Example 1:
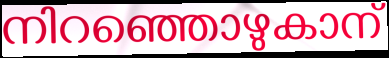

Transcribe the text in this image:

നിറഞ്ഞൊഴുകാന്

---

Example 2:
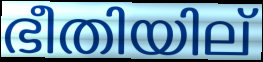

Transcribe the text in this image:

ഭീതിയില്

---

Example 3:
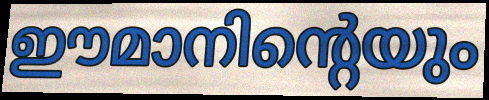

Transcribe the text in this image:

ഈമാനിന്റെയും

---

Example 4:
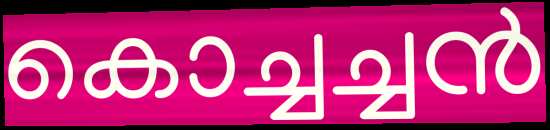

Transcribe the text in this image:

കൊച്ചച്ചൻ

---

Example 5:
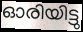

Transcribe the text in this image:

ഓരിയിട്ടു